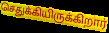
செதுக்கியிருக்கிறார்